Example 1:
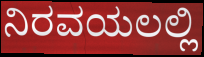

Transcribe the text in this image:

ನಿರವಯಲಲ್ಲಿ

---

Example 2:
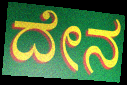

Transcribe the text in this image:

ದೇನ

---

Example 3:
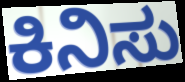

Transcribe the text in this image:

ಕಿನಿಸು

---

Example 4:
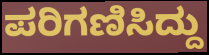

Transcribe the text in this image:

ಪರಿಗಣಿಸಿದ್ದು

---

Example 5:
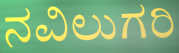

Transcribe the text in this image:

ನವಿಲುಗರಿ